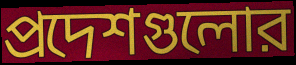
প্রদেশগুলোর